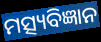
ମତ୍ସ୍ୟବିଜ୍ଞାନ